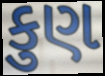
કુણ